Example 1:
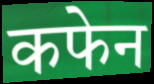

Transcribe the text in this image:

कफेन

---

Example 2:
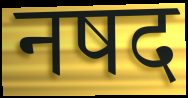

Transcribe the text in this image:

नषद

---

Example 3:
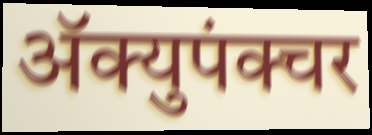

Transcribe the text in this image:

ॲक्युपंक्चर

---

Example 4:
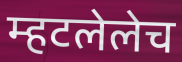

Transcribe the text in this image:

म्हटलेलेच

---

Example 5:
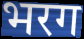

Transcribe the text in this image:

भरग